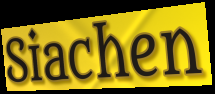
Siachen